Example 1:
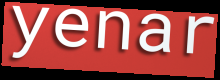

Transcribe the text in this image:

yenar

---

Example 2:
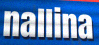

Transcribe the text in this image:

nallina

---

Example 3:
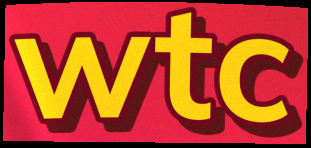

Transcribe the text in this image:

wtc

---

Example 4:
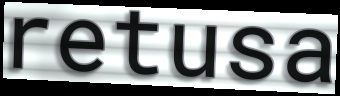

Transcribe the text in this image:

retusa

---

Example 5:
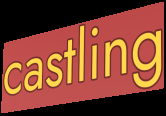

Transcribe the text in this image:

castling